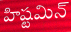
హిష్టమిన్